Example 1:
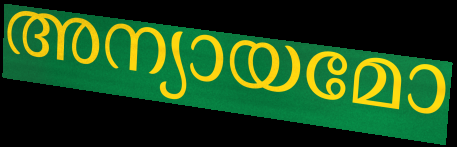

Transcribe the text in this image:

അന്യായമോ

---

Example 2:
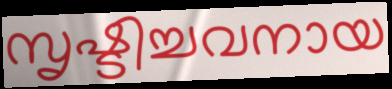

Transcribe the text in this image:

സൃഷ്ടിച്ചവനായ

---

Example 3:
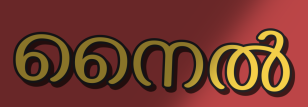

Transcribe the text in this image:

നൈൽ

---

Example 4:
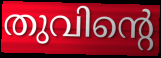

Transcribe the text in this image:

തുവിന്റെ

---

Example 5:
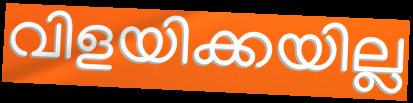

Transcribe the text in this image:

വിളയിക്കയില്ല